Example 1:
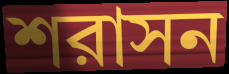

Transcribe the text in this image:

শরাসন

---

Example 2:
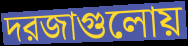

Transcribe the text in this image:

দরজাগুলোয়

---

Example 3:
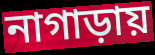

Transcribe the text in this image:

নাগাড়ায়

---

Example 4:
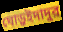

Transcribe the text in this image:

ঘোড়ুইদাদুর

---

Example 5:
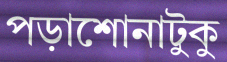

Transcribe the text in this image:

পড়াশোনাটুকু